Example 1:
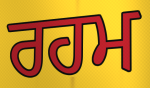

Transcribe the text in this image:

ਰਹਮ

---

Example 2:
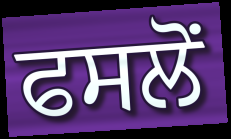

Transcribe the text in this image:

ਫਸਲੋਂ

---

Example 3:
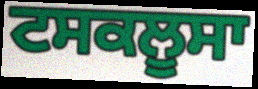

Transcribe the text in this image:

ਟਸਕਲੂਸਾ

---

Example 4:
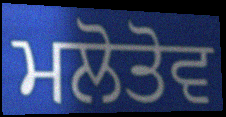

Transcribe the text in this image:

ਮਲੋਤੋਵ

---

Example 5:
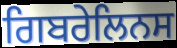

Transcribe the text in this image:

ਗਿਬਰੇਲਿਨਸ